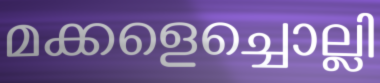
മക്കളെച്ചൊല്ലി